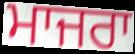
ਮਾਜਰਾ